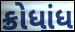
ક્રોધાંધ